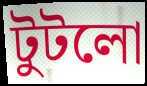
টুটলো